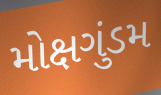
મોક્ષગુંડમ